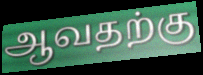
ஆவதற்கு